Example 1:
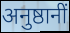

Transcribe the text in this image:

अनुष्ठानीं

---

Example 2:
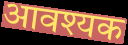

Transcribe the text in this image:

आवश्‍यक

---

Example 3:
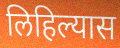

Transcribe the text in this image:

लिहिल्यास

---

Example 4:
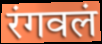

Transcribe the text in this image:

रंगवलं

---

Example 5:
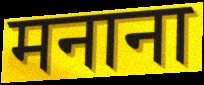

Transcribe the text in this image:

मनाना